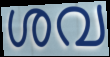
ശവ